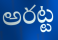
అరట్ట